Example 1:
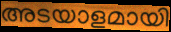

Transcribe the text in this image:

അടയാളമായി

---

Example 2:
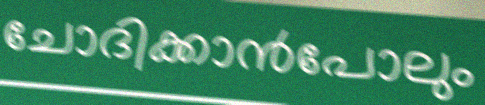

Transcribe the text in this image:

ചോദിക്കാൻപോലും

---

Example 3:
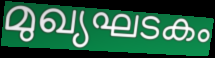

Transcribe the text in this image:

മുഖ്യഘടകം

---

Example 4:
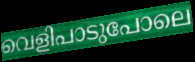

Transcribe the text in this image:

വെളിപാടുപോലെ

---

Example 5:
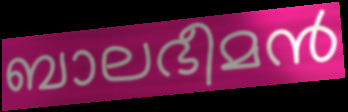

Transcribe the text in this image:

ബാലഭീമൻ